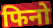
फिनो